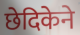
छेदिकेने